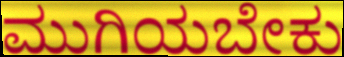
ಮುಗಿಯಬೇಕು